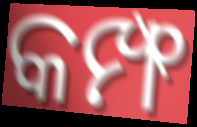
କମ୍ଫ